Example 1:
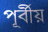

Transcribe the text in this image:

পূর্বীয়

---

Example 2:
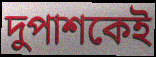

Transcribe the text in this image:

দুপাশকেই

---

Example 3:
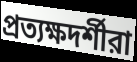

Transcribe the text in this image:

প্রত্যক্ষদর্শীরা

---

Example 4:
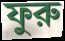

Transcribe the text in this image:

ফুরু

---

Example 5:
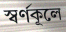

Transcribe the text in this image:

স্বর্ণকূলে